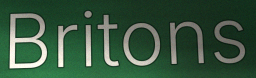
Britons